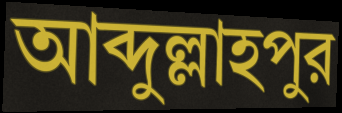
আব্দুল্লাহপুর